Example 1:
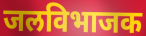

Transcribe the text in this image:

जलविभाजक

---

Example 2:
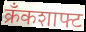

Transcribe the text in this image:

क्रँकशाफ्ट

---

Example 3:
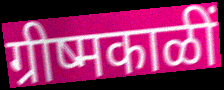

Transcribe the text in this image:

ग्रीष्मकाळीं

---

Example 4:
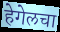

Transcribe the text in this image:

हेगेलचा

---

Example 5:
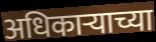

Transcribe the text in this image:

अधिकाऱ्याच्या